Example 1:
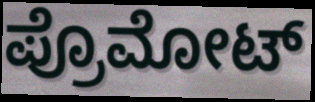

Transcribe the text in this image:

ಪ್ರೊಮೋಟ್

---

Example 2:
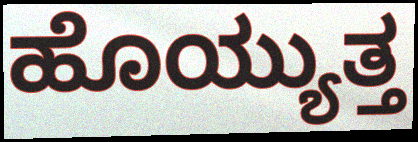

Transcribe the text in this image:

ಹೊಯ್ಯುತ್ತ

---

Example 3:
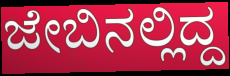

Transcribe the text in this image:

ಜೇಬಿನಲ್ಲಿದ್ದ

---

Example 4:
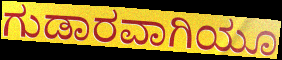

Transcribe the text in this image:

ಗುಡಾರವಾಗಿಯೂ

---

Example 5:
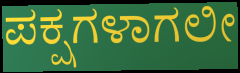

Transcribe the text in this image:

ಪಕ್ಷಗಳಾಗಲೀ